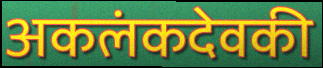
अकलंकदेवकी